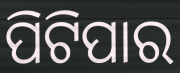
ପିଟିପାର